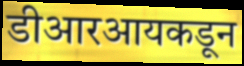
डीआरआयकडून